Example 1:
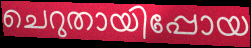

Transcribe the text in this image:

ചെറുതായിപ്പോയ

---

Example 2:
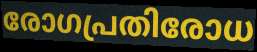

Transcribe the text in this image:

രോഗപ്രതിരോധ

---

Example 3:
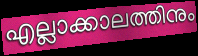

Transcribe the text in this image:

എല്ലാക്കാലത്തിനും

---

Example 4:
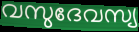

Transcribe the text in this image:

വസുദേവസ്യ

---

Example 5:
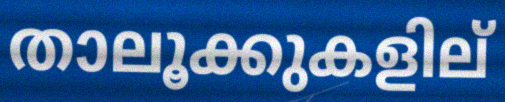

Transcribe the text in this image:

താലൂക്കുകളില്